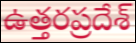
ఉత్తరప్రదేశ్